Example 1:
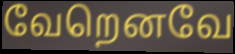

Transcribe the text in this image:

வேறெனவே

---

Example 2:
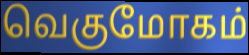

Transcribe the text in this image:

வெகுமோகம்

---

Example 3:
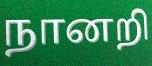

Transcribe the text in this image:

நானறி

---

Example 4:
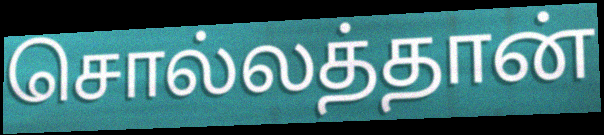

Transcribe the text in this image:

சொல்லத்தான்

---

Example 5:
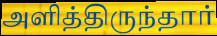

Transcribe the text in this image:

அளித்திருந்தார்